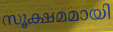
സൂക്ഷമമായി